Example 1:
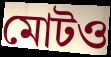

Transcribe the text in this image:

মোটও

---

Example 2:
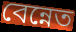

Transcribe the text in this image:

বেন্নেত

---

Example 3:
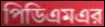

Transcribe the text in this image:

পিডিএমএর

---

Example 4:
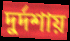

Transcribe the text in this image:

দুর্দশায়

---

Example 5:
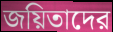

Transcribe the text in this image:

জয়িতাদের